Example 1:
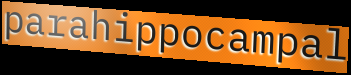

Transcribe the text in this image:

parahippocampal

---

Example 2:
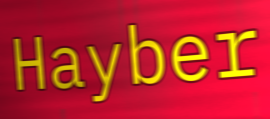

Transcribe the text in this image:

Hayber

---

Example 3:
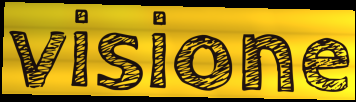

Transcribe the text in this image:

visione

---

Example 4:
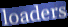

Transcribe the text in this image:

loaders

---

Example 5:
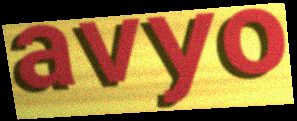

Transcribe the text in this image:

avyo